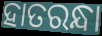
ହାତରନ୍ଧା